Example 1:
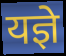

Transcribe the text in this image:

यज्ञे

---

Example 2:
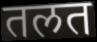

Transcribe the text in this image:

तलत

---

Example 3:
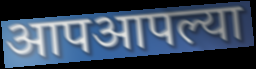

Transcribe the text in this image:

आपआपल्या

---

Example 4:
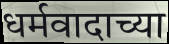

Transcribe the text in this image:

धर्मवादाच्या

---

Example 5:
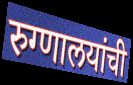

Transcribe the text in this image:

रुग्णालयांची